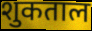
शुकताल